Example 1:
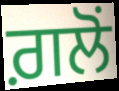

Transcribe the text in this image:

ਗ਼ਲੋਂ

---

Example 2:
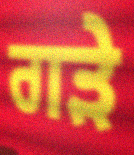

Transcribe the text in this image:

ਗੜੇ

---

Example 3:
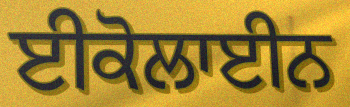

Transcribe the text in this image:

ਈਕੋਲਾਈਨ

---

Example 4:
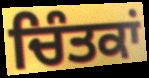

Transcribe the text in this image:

ਚਿੰਤਕਾਂ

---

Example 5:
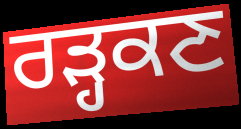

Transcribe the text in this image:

ਰੜ੍ਹਕਣ